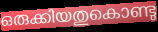
ഒരുക്കിയതുകൊണ്ടു